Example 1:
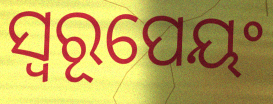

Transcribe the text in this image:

ସ୍ୱରୂପେୟଂ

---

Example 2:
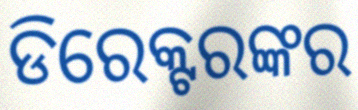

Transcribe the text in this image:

ଡିରେକ୍ଟରଙ୍କର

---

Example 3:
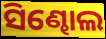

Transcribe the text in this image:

ସିଣ୍ଢୋଲ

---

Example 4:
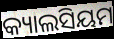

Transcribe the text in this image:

କ୍ୟାଲସିୟମ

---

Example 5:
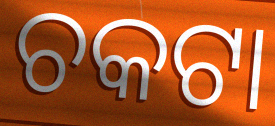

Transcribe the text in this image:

ଚକଟା